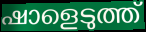
ഷാളെടുത്ത്